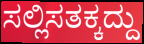
ಸಲ್ಲಿಸತಕ್ಕದ್ದು